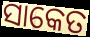
ସାକେତ